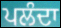
ਪਲੰਦਾ